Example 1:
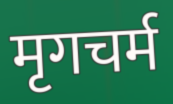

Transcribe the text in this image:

मृगचर्म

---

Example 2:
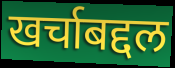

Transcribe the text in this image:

खर्चाबद्दल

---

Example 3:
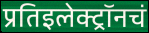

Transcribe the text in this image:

प्रतिइलेक्ट्रॉनचं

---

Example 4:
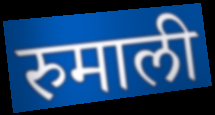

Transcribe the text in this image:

रुमाली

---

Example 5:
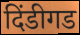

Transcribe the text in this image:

दिंडीगड